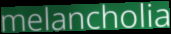
melancholia